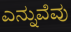
ಎನ್ನುವೆವು